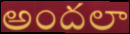
అందలా